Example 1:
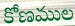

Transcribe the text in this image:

కోణముల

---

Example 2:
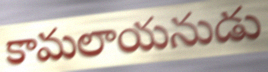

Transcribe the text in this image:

కామలాయనుడు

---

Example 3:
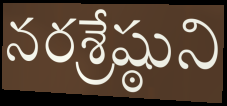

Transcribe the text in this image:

నరశ్రేష్ఠుని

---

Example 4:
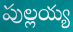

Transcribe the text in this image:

పుల్లయ్య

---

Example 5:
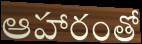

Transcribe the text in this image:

ఆహారంతో